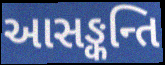
આસઙ્કન્તિ